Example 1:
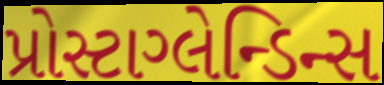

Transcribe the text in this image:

પ્રોસ્ટાગ્લેન્ડિન્સ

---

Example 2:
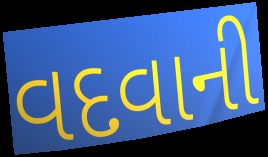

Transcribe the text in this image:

વદવાની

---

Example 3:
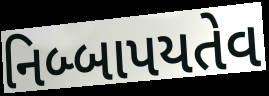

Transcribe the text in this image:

નિબ્બાપયતેવ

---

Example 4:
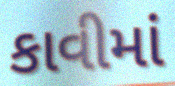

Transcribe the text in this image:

કાવીમાં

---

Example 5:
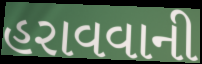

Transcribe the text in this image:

હરાવવાની